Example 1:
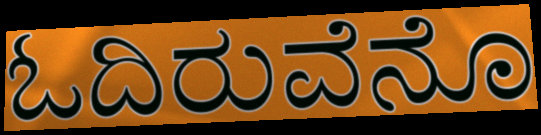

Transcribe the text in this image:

ಓದಿರುವೆನೊ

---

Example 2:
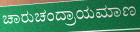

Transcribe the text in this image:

ಚಾರುಚಂದ್ರಾಯಮಾಣ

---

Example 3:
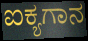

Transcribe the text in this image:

ಐಕ್ಯಗಾನ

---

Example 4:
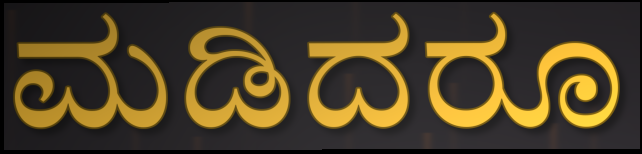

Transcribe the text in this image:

ಮಡಿದರೂ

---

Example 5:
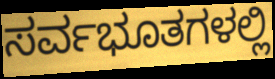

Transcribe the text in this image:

ಸರ್ವಭೂತಗಳಲ್ಲಿ